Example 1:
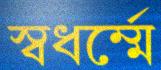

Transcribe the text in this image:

স্বধর্ম্মে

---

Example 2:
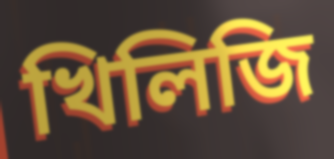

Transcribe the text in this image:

খিলিজি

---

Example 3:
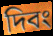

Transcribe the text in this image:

দিবং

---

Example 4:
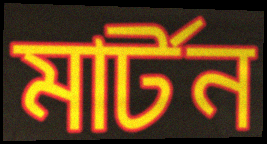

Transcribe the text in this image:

মার্টন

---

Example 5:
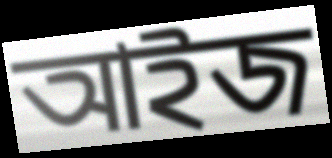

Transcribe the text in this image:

আইজ